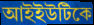
আইইউটিকে